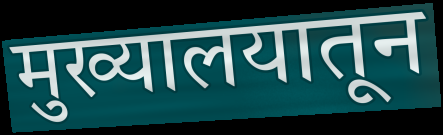
मुख्यालयातून